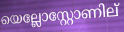
യെല്ലോസ്റ്റോണില്